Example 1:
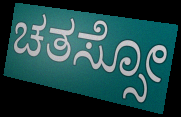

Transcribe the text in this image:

ಚತಸ್ಸೋ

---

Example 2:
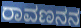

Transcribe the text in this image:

ರಾವಣನನ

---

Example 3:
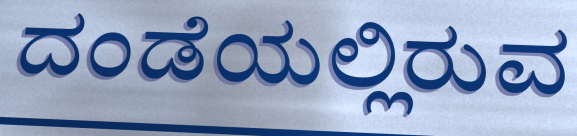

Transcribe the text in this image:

ದಂಡೆಯಲ್ಲಿರುವ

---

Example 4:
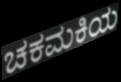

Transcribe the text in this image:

ಚಕಮಕಿಯ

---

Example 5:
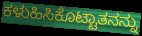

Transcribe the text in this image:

ಕಳುಹಿಸಿಕೊಟ್ಟಾತನನ್ನು